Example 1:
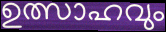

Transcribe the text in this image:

ഉത്സാഹവും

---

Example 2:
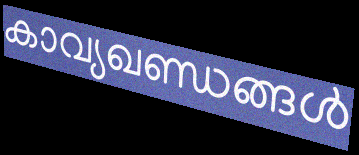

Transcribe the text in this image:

കാവ്യഖണ്ഡങ്ങൾ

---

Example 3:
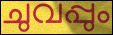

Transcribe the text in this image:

ചുവപ്പും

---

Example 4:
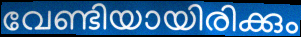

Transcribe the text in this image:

വേണ്ടിയായിരിക്കും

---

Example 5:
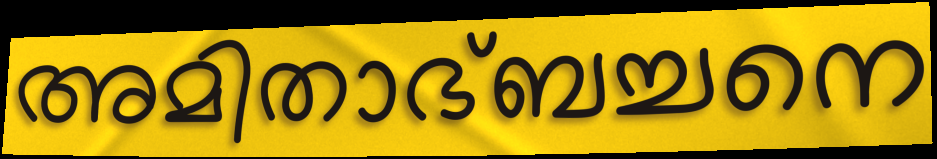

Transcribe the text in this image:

അമിതാഭ്ബച്ചനെ